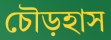
চৌড়হাস